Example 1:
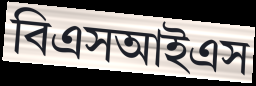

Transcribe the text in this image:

বিএসআইএস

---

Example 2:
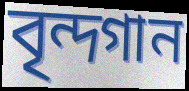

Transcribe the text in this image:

বৃন্দগান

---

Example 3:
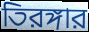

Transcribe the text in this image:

তিরঙ্গার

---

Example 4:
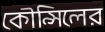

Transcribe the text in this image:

কৌন্সিলের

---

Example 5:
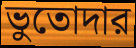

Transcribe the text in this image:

ভুতোদার